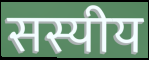
सस्यीय